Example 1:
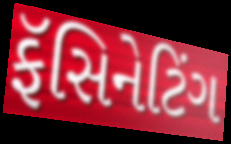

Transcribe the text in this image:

ફૅસિનેટિંગ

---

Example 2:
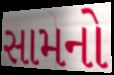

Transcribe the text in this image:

સામનો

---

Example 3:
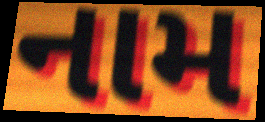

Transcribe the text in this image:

નામ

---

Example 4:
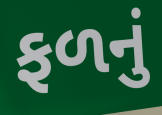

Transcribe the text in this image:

ફળનું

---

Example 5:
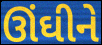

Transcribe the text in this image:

ઊંઘીને